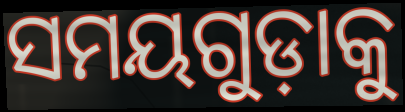
ସମୟଗୁଡ଼ାକୁ